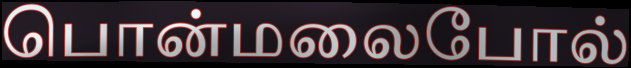
பொன்மலைபோல்